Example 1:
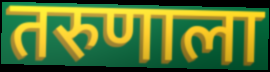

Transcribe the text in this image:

तरुणाला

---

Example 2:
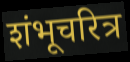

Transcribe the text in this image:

शंभूचरित्र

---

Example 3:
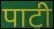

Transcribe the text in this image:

पाटी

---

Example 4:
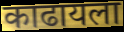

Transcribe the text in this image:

काढायला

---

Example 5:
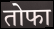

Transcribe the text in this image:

तोफा